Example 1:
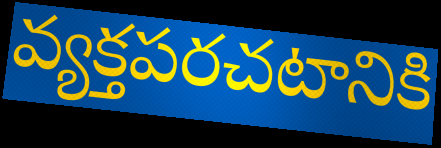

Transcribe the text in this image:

వ్యక్తపరచటానికి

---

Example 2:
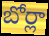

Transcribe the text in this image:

బోర్లా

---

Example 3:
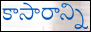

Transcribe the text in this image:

కాసారాన్ని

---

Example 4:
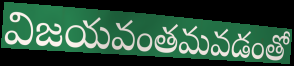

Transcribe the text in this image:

విజయవంతమవడంతో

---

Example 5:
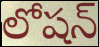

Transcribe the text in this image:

లోషన్